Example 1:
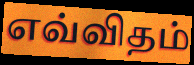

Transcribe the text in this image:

எவ்விதம்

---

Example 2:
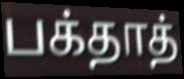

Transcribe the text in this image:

பக்தாத்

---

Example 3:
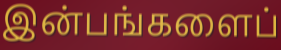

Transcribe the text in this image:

இன்பங்களைப்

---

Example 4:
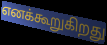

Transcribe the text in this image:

எனக்கூறுகிறது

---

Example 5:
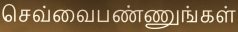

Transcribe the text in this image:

செவ்வைபண்ணுங்கள்